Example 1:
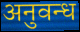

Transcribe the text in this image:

अनुवन्ध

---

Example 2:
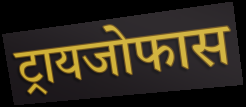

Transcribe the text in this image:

ट्रायजोफास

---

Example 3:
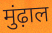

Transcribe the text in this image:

मुंढ़ाल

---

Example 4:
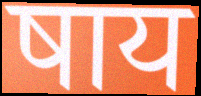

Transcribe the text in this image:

षाय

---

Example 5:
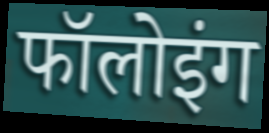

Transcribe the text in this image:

फॉलोइंग